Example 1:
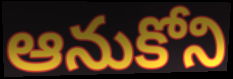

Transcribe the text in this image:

ఆనుకోని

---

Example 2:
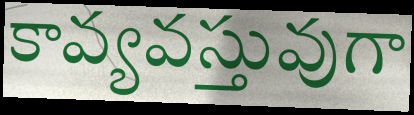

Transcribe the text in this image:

కావ్యవస్తువుగా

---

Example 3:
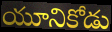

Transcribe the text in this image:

యూనికోడు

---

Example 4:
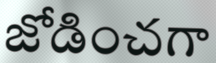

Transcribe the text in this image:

జోడించగా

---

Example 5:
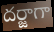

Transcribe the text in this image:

దర్జాగా